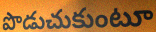
పొడుచుకుంటూ